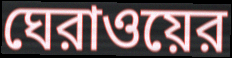
ঘেরাওয়ের